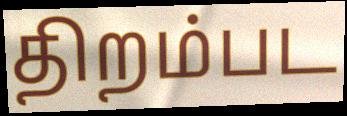
திறம்பட